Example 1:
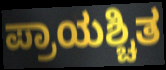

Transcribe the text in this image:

ಪ್ರಾಯಶ್ಚಿತ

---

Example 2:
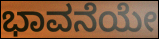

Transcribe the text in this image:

ಭಾವನೆಯೇ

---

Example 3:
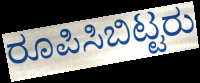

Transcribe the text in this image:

ರೂಪಿಸಿಬಿಟ್ಟರು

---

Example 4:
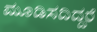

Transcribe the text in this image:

ಮೂಡಿಸದಿದ್ದರೆ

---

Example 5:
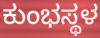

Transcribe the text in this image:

ಕುಂಭಸ್ಥಳ